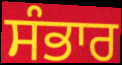
ਸੰਭਾਰ